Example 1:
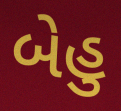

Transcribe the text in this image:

બેહુ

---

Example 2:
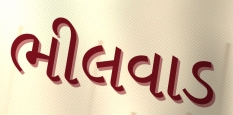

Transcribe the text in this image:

ભીલવાડ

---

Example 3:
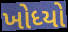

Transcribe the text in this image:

ખોધ્યો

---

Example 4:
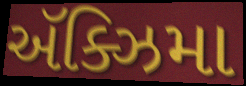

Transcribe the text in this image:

ઍક્ઝિમા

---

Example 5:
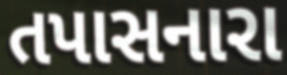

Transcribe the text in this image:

તપાસનારા